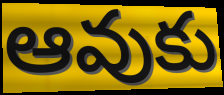
ఆవుకు